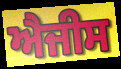
ਐਜੀਸ